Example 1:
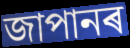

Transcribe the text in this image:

জাপানৰ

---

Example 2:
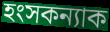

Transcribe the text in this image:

হংসকন্যাক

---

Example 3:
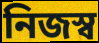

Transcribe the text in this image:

নিজস্ব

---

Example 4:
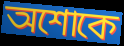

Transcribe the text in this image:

অশোকে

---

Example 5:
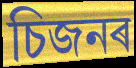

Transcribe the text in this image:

চিজনৰ